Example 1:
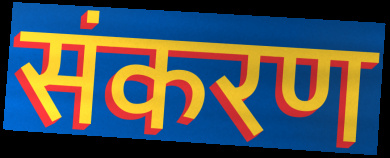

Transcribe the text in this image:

संकरण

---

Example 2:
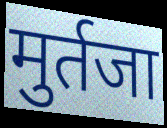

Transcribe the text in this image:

मुर्तजा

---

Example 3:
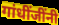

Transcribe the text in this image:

गांधींजींनी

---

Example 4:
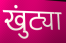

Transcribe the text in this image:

खुंट्या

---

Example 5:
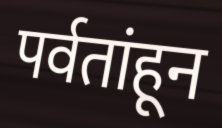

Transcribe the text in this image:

पर्वतांहून